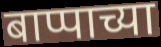
बाप्पाच्या